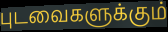
புடவைகளுக்கும்